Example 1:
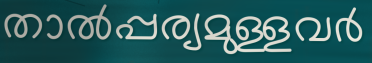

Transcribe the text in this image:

താൽപ്പര്യമുള്ളവർ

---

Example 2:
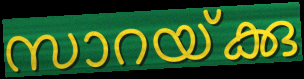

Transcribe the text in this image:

സാറയ്‌ക്കു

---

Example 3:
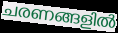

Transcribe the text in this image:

ചരണങ്ങളിൽ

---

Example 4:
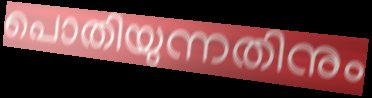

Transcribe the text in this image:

പൊതിയുന്നതിനും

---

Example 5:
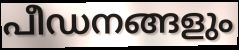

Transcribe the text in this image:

പീഡനങ്ങളും